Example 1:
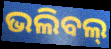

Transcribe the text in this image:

ଭଲିବଲ୍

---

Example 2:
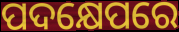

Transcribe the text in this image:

ପଦକ୍ଷେପରେ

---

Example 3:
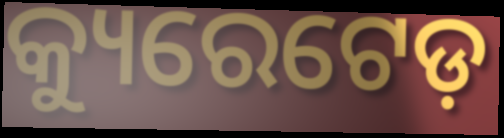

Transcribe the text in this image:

କ୍ୟୁରେଟେଡ଼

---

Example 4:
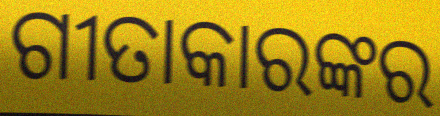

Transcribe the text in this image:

ଗୀତାକାରଙ୍କର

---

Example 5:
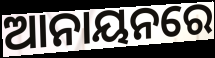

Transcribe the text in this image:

ଆନାୟନରେ